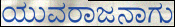
ಯುವರಾಜನಾಗು